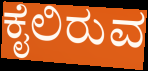
ಕೈಲಿರುವ